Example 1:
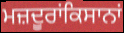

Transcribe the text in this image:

ਮਜ਼ਦੂਰਾਂਕਿਸਾਨਾਂ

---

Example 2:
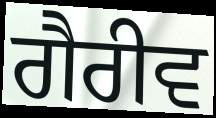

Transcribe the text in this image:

ਗੈਰੀਵ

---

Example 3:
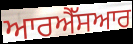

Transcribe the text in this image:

ਆਰਐੱਸਆਰ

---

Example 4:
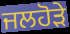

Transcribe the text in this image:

ਜਲਹੋੜੇ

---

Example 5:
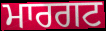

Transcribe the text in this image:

ਮਾਰਗਟ